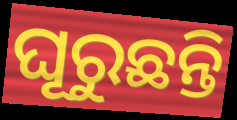
ଘୂରୁଛନ୍ତି